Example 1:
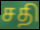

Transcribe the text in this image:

சதி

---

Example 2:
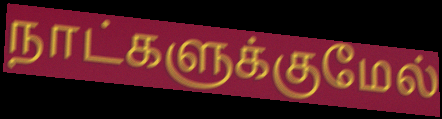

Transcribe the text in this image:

நாட்களுக்குமேல்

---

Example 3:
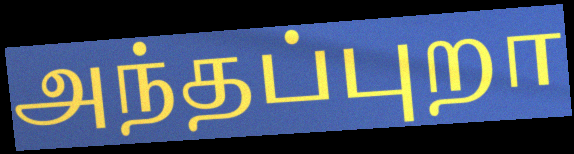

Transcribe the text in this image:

அந்தப்புறா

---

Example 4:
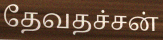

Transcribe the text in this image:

தேவதச்சன்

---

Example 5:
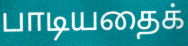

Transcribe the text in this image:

பாடியதைக்